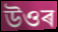
উওৰ